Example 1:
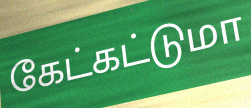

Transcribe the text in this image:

கேட்கட்டுமா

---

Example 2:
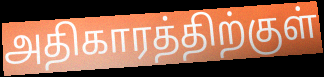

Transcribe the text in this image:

அதிகாரத்திற்குள்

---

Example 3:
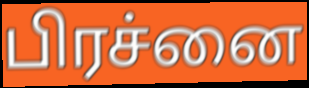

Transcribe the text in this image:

பிரச்னை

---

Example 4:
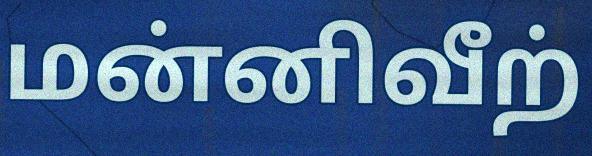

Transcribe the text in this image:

மன்னிவீற்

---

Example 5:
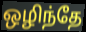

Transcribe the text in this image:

ஒழிந்தே